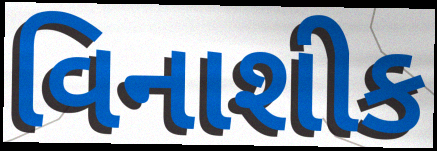
વિનાશીક